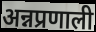
अन्नप्रणाली